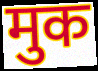
मुक